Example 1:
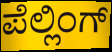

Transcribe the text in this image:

ಪೆಲ್ಲಿಂಗ್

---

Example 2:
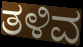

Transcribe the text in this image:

ತಳಿವ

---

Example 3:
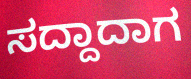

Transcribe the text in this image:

ಸದ್ದಾದಾಗ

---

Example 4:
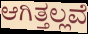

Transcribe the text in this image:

ಆಗಿತ್ತಲ್ಲವೆ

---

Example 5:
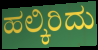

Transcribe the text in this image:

ಹಲ್ಕಿರಿದು